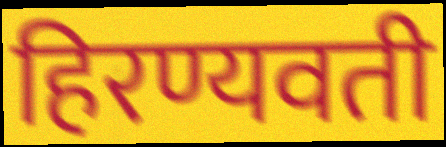
हिरण्यवती